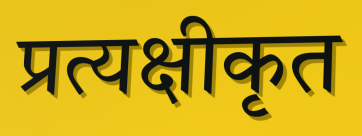
प्रत्यक्षीकृत